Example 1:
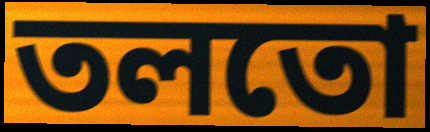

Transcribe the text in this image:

তলতো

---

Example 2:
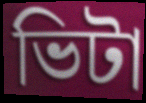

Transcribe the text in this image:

ভিটা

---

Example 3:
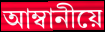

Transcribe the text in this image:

আম্বানীয়ে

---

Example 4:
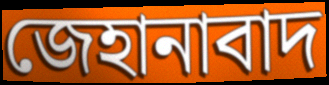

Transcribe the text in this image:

জেহানাবাদ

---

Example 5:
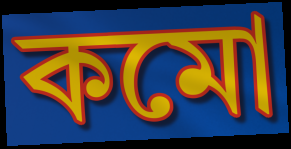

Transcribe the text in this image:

কমো